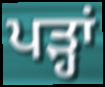
ਪੜ੍ਹਾਂ